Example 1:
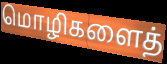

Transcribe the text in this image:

மொழிகளைத்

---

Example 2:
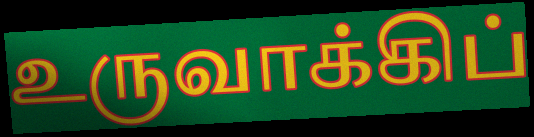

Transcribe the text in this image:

உருவாக்கிப்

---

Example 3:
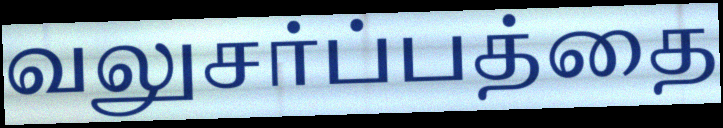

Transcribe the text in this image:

வலுசர்ப்பத்தை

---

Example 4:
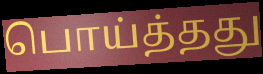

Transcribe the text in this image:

பொய்த்தது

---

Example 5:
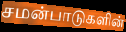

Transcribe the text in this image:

சமன்பாடுகளின்